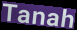
Tanah